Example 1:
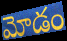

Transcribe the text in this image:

మోడం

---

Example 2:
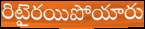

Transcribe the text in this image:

రిటైరయిపోయారు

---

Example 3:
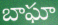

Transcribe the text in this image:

బాఘా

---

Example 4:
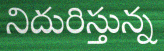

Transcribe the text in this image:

నిదురిస్తున్న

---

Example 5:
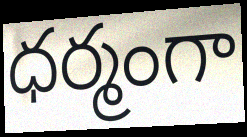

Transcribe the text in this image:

ధర్మంగా